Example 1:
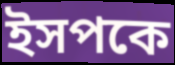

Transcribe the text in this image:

ইসপকে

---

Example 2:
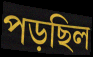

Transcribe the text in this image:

পড়ছিল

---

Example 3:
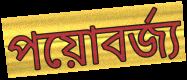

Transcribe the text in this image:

পয়োবর্জ্য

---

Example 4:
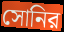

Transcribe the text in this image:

সোনির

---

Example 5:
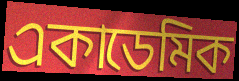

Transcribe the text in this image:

একাডেমিক